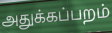
அதுக்கப்பறம்